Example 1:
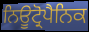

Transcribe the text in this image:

ਨਿਊਟ੍ਰੋਪੈਨਿਕ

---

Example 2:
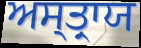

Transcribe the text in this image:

ਅਸ੍ਤ੍ਰਾਯ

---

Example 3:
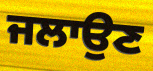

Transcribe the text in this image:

ਜਲਾਉਣ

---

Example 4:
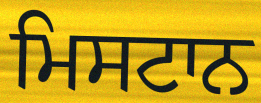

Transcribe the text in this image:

ਮਿਸਟਾਨ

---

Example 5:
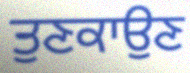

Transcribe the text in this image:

ਤੁਣਕਾਉਣ